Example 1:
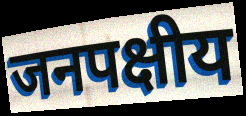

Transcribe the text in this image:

जनपक्षीय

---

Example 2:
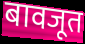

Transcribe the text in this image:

बावजूत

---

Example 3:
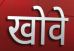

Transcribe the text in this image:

खोवे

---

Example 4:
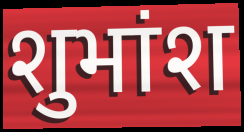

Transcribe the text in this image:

शुभांश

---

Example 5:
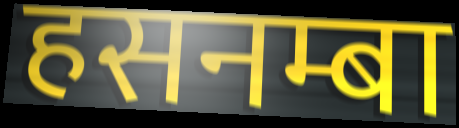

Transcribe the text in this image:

हसनम्बा